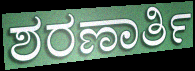
ಶರಣಾರ್ತಿ